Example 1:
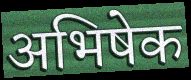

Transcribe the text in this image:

अभिषेक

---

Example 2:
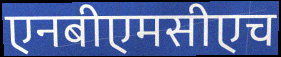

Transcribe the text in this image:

एनबीएमसीएच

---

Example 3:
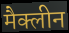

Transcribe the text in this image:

मैक्लीन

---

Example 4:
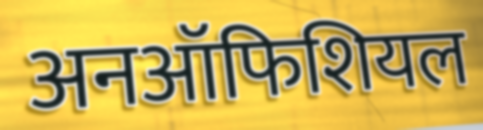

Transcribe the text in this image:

अनऑफिशियल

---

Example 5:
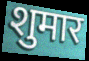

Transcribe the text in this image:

शुमार